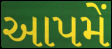
આપમેં